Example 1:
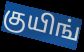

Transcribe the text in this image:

குயிங்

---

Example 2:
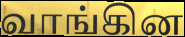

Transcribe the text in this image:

வாங்கின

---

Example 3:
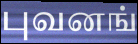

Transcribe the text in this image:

புவனங்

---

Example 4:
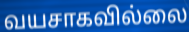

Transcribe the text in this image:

வயசாகவில்லை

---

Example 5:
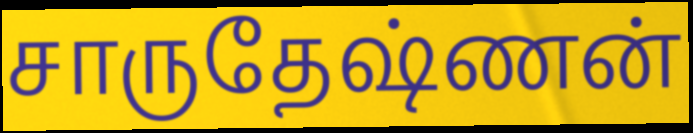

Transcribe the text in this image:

சாருதேஷ்ணன்